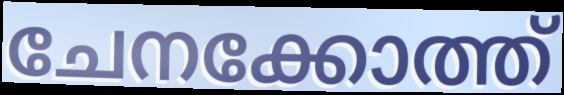
ചേനക്കോത്ത്